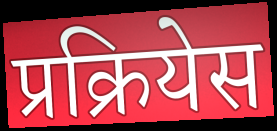
प्रक्रियेस